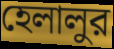
হেলালুর